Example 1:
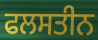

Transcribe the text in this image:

ਫਲਸਤੀਨ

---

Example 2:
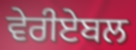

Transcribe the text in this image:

ਵੇਰੀਏਬਲ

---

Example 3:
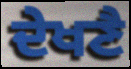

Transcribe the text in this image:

ਦੇਖਣੈ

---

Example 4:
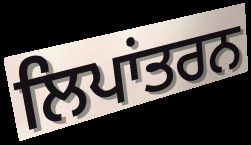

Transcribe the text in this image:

ਲਿਪਾਂਤਰਨ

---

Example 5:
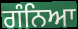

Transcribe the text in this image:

ਗੰਨਿਆ